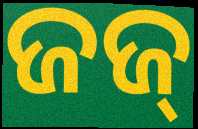
ଜଜ୍